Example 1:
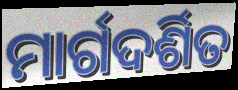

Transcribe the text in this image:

ମାର୍ଗଦର୍ଶିତ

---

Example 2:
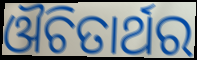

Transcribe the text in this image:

ଔଚିତାର୍ଥର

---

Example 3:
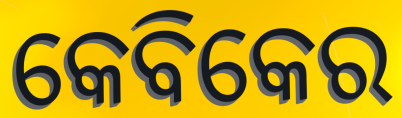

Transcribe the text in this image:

କେବିକେର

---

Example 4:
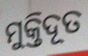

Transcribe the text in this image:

ମୁକ୍ତିଦୂତ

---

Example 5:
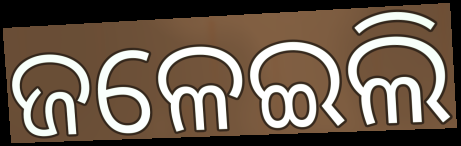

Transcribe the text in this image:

ଜଳେଇଲି